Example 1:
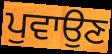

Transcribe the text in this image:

ਪੁਵਾਉਣ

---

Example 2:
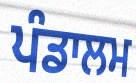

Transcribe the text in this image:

ਪੰਡਾਲਮ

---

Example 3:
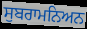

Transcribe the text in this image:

ਸੁਬਰਾਮਨਿਅਨ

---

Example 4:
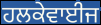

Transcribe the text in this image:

ਹਲਕੇਵਾਈਜ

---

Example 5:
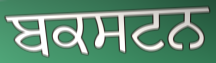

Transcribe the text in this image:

ਬਕਸਟਨ